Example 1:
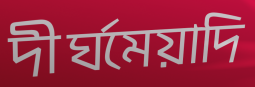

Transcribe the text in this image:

দীর্ঘমেয়াদি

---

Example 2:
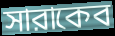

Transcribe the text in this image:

সারাকেব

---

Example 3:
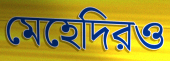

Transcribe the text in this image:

মেহেদিরও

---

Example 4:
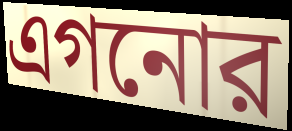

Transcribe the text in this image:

এগনোর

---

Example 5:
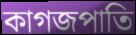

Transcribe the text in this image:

কাগজপাতি